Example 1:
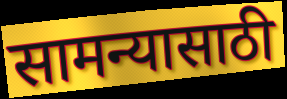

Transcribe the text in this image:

सामन्यासाठी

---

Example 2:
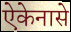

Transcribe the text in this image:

ऐकेनासे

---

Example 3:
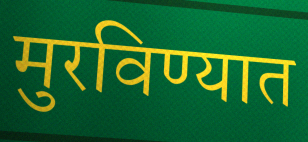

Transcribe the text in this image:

मुरविण्यात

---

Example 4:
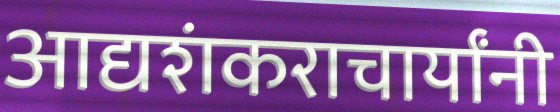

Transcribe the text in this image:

आद्यशंकराचार्यांनी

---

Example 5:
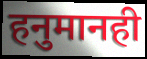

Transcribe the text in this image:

हनुमानही